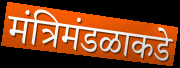
मंत्रिमंडळाकडे